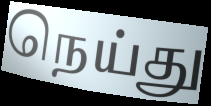
நெய்து